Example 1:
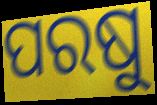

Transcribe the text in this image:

ପରଷୁ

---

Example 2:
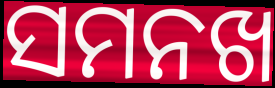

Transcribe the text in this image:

ସମନଖ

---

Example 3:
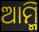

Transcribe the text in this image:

ଆମ୍ମି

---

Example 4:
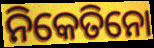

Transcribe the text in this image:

ନିକେତିନୋ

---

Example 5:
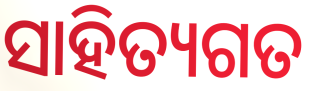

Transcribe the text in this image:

ସାହିତ୍ୟଗତ